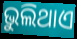
ଭୁଲିଥାଏ